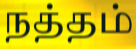
நத்தம்